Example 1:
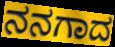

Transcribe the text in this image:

ನನಗಾದ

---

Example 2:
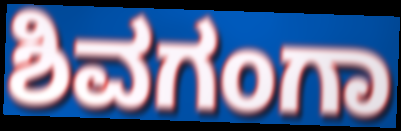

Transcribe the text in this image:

ಶಿವಗಂಗಾ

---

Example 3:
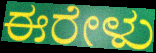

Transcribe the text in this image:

ಈರೇಳು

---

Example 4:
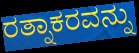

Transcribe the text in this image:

ರತ್ನಾಕರವನ್ನು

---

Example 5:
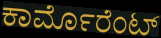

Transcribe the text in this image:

ಕಾರ್ಮೊರೆಂಟ್